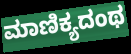
ಮಾಣಿಕ್ಯದಂಥ